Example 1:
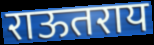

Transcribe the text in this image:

राऊतराय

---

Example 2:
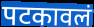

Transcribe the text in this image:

पटकावलं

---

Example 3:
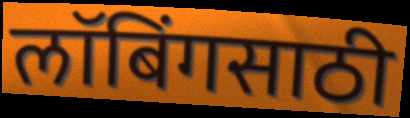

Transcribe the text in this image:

लॉबिंगसाठी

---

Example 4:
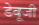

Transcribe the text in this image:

डेबूजी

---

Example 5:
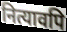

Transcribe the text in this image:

नित्यावपि